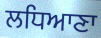
ਲਧਿਆਣਾ